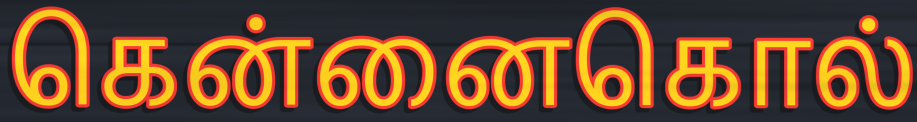
கென்னைகொல்